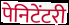
पेनिटेंटरी